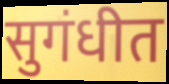
सुगंधीत